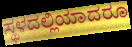
ಸ್ಥಳದಲ್ಲಿಯಾದರೂ